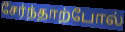
சேர்ந்தாற்போல்